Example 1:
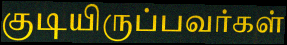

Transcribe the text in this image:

குடியிருப்பவர்கள்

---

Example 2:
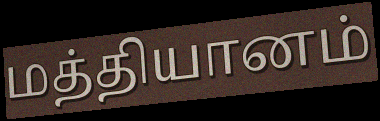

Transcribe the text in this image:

மத்தியானம்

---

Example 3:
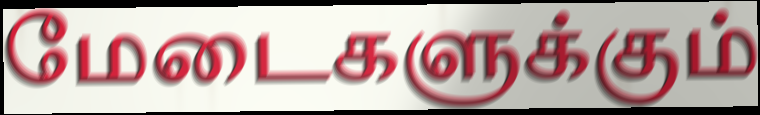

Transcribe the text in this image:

மேடைகளுக்கும்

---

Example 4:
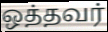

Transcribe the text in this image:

ஒத்தவர்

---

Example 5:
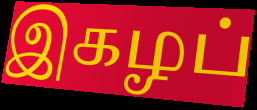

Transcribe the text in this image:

இகழப்